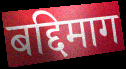
बद्दिमाग